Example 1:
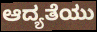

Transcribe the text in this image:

ಆದ್ಯತೆಯು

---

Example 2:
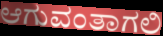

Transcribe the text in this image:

ಆಗುವಂತಾಗಲಿ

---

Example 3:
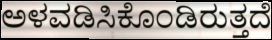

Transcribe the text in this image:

ಅಳವಡಿಸಿಕೊಂಡಿರುತ್ತದೆ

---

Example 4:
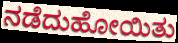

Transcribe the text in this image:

ನಡೆದುಹೋಯಿತು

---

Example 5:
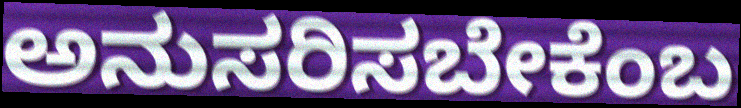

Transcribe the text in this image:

ಅನುಸರಿಸಬೇಕೆಂಬ